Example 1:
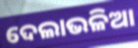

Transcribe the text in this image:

ଦେଲାଭଳିଆ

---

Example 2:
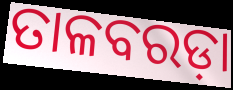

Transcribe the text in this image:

ତାଳବରଡ଼ା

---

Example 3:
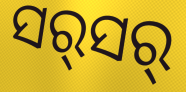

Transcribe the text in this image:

ସର୍‍ସର୍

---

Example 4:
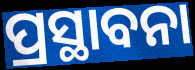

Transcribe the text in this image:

ପ୍ରସ୍ଥାବନା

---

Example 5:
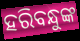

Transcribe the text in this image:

ହରିବନ୍ଧୁଙ୍କ